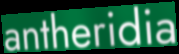
antheridia